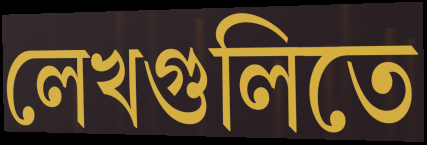
লেখগুলিতে